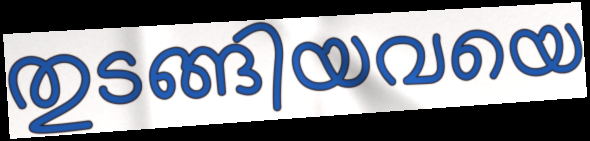
തുടങ്ങിയവയെ